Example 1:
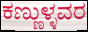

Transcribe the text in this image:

ಕಣ್ಣುಳ್ಳವರ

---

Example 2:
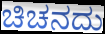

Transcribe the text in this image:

ಚಿಚನದು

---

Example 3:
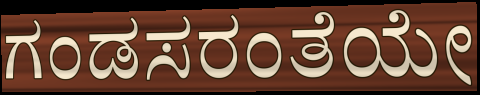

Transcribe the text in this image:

ಗಂಡಸರಂತೆಯೇ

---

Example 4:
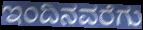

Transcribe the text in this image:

ಇಂದಿನವರೆಗು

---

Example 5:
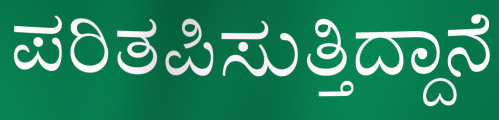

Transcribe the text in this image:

ಪರಿತಪಿಸುತ್ತಿದ್ದಾನೆ